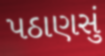
પઠાણસું